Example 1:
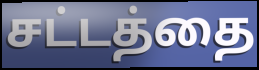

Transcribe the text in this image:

சட்டத்தை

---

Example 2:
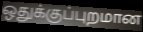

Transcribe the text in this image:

ஒதுக்குப்புறமான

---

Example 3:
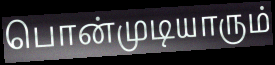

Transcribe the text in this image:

பொன்முடியாரும்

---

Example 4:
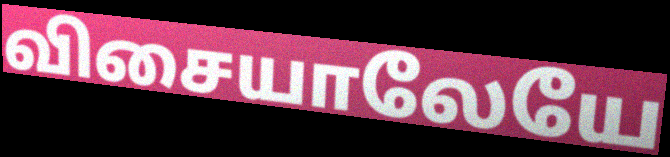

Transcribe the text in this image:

விசையாலேயே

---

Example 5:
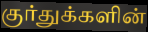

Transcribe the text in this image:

குர்துக்களின்